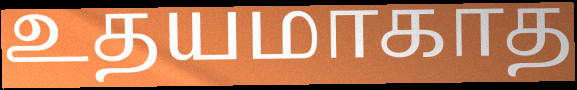
உதயமாகாத